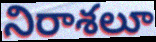
నిరాశలూ